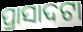
ପ୍ରାସାଦଟା